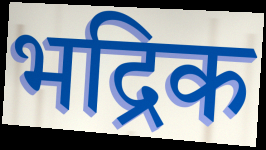
भद्रिक